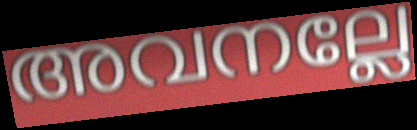
അവനല്ലേ